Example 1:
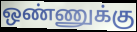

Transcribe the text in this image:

ஒண்ணுக்கு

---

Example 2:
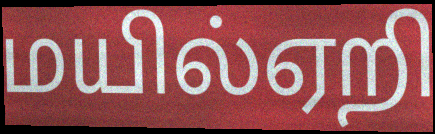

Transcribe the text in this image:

மயில்ஏறி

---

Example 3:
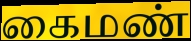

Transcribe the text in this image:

கைமண்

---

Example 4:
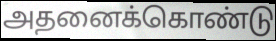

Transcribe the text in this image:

அதனைக்கொண்டு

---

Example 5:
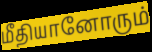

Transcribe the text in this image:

மீதியானோரும்